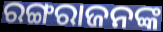
ରଙ୍ଗରାଜନଙ୍କ